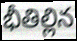
భీతిల్లిన